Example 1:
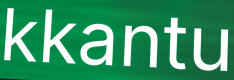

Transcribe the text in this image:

kkantu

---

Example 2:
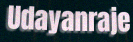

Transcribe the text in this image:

Udayanraje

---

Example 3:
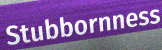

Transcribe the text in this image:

Stubbornness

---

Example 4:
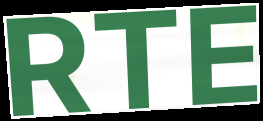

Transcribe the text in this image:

RTE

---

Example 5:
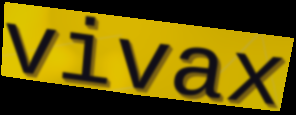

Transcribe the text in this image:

vivax